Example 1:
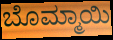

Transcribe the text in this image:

ಬೊಮ್ಮಾಯಿ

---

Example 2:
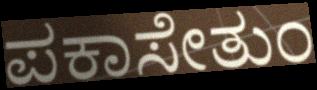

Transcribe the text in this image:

ಪಕಾಸೇತುಂ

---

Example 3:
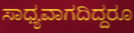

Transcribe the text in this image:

ಸಾಧ್ಯವಾಗದಿದ್ದರೂ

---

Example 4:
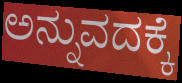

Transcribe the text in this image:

ಅನ್ನುವದಕ್ಕೆ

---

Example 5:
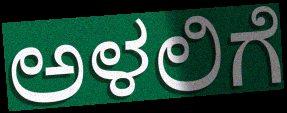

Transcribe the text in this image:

ಅಳಲಿಗೆ